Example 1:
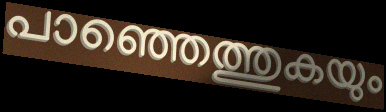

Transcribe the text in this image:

പാഞ്ഞെത്തുകയും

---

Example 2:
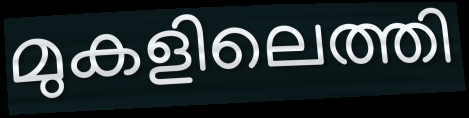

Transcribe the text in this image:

മുകളിലെത്തി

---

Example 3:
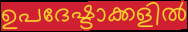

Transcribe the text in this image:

ഉപദേഷ്ടാക്കളിൽ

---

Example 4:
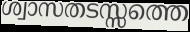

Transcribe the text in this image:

ശ്വാസതടസ്സത്തെ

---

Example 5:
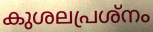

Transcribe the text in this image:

കുശലപ്രശ്നം